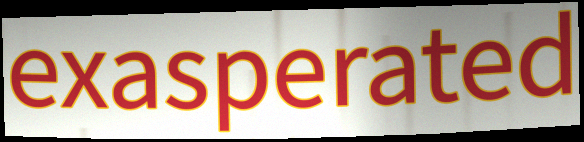
exasperated